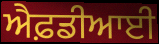
ਐਫ਼ਡੀਆਈ